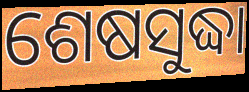
ଶେଷସୁଦ୍ଧା